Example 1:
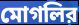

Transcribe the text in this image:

মোগলির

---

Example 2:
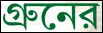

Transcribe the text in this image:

গ্রুনের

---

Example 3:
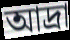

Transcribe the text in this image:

আদ্রা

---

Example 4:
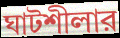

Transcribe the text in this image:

ঘাটশীলার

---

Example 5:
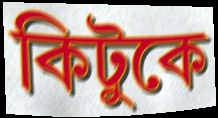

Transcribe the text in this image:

কিটুকে